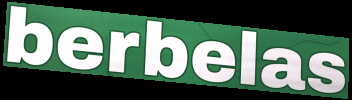
berbelas